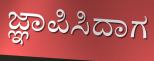
ಜ್ಞಾಪಿಸಿದಾಗ